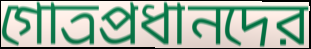
গোত্রপ্রধানদের